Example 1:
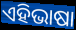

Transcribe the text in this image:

ଏହିଭାଷା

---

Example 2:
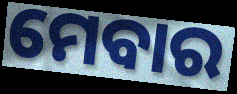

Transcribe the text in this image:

ମେବାର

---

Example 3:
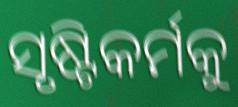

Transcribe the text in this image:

ସୃଷ୍ଟିକର୍ମକୁ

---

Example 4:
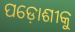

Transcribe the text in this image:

ପଡ଼ୋଶୀକୁ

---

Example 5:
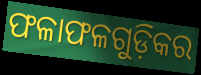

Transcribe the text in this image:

ଫଳାଫଳଗୁଡ଼ିକର